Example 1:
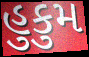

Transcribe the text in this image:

હુકુમ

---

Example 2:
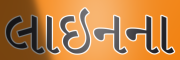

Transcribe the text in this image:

લાઇનના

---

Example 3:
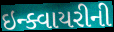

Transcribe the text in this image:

ઇન્ક્વાયરીની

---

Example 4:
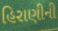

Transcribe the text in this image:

હિરાણીની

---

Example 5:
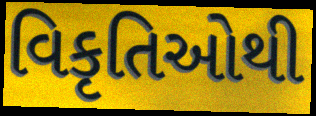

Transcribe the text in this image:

વિકૃતિઓથી